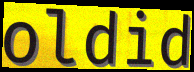
oldid